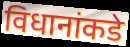
विधानांकडे